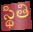
స్థితి